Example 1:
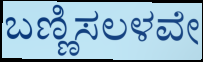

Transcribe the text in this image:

ಬಣ್ಣಿಸಲಳವೇ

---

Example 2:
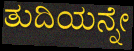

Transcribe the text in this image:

ತುದಿಯನ್ನೇ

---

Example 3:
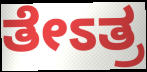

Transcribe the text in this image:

ತೇಽತ್ರ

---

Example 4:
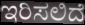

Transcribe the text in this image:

ಇರಿಸಲಿದೆ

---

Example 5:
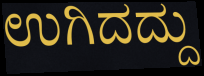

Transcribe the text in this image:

ಉಗಿದದ್ದು